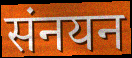
संनयन